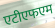
एटीएफएम